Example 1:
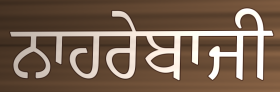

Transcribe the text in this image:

ਨਾਹਰੇਬਾਜੀ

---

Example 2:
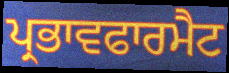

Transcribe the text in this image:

ਪ੍ਰਭਾਵਫਾਰਮੈਟ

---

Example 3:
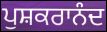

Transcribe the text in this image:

ਪੁਸ਼ਕਰਾਨੰਦ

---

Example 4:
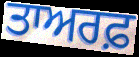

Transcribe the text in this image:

ਤਾਅਰਫ਼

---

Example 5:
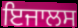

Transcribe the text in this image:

ਇਜਾਲਸ